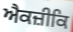
ਐਕਜ਼ੀਕਿ